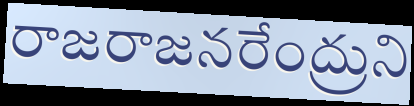
రాజరాజనరేంద్రుని